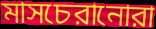
মাসচেরানোরা